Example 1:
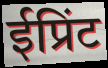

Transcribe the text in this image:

ईप्रिंट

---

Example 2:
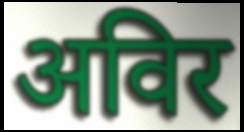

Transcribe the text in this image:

अविर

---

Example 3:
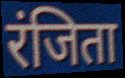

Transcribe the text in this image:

रंजिता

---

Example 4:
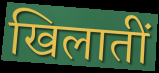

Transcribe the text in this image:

खिलातीं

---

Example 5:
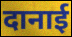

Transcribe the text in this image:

दानाई